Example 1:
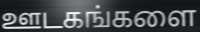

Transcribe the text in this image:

ஊடகங்களை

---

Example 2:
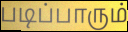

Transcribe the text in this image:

படிப்பாரும்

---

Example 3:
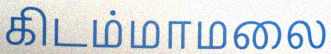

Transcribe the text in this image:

கிடம்மாமலை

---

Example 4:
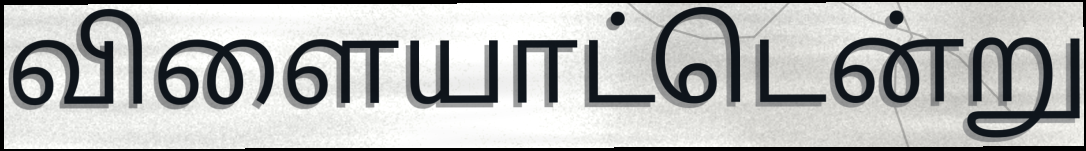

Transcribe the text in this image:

விளையாட்டென்று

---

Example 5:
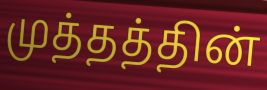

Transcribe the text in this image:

முத்தத்தின்